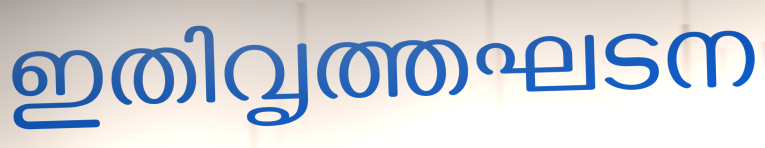
ഇതിവൃത്തഘടന